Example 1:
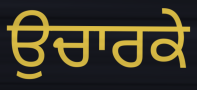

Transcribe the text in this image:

ਉਚਾਰਕੇ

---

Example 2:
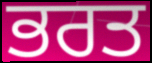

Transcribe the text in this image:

ਭਰਤ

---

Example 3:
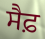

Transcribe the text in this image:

ਸੈਫ਼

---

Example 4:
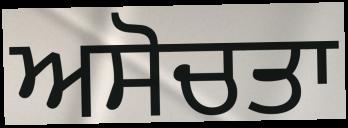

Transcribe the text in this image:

ਅਸੋਚਤਾ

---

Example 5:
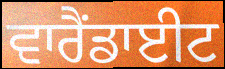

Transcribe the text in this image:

ਵਾਰੈਂਡਾਈਟ